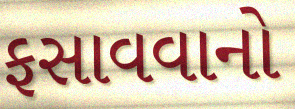
ફસાવવાનો